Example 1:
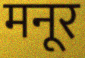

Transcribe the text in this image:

मनूर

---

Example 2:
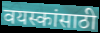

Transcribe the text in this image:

वयस्कांसाठी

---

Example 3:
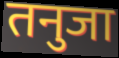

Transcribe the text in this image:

तनुजा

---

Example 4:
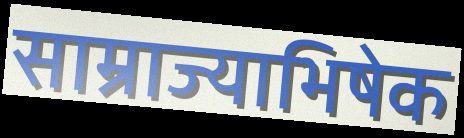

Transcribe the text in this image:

साम्राज्याभिषेक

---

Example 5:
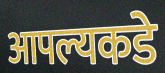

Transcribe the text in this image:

आपल्यकडे